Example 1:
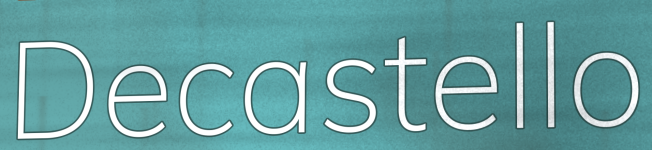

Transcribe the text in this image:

Decastello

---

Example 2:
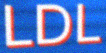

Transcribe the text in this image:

LDL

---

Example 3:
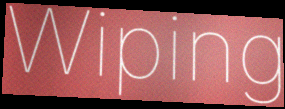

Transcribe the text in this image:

Wiping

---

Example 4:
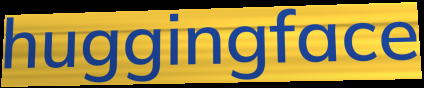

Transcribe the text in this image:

huggingface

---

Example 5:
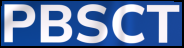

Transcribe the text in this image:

PBSCT